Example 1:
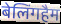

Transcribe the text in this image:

बेलिंगहैम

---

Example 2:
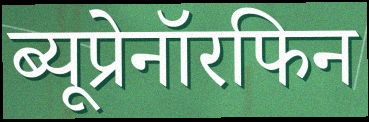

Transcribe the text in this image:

ब्यूप्रेनॉरफिन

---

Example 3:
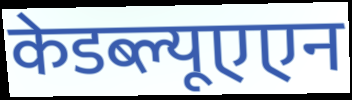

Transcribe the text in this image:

केडब्ल्यूएएन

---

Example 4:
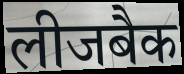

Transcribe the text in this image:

लीजबैक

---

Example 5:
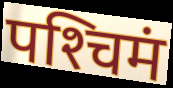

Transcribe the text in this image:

पश्चिमं